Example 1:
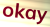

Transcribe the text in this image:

okay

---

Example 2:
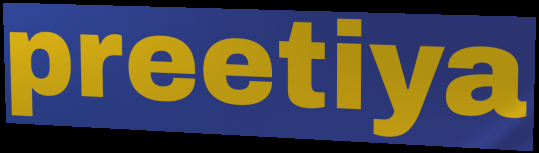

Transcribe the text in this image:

preetiya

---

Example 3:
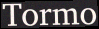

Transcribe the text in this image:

Tormo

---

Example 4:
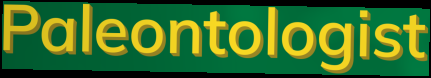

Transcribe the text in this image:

Paleontologist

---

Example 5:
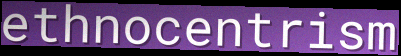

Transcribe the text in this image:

ethnocentrism